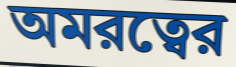
অমরত্বের